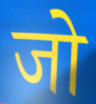
जो